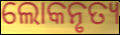
ଲୋକନୃତ୍ଯ